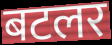
बटलर